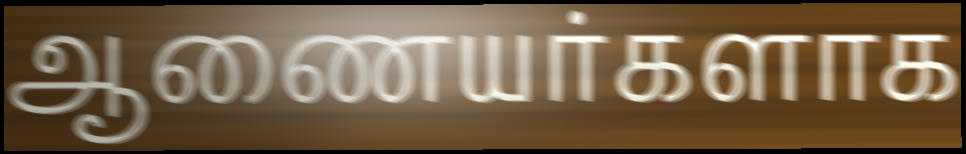
ஆணையர்களாக